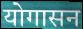
योगासन